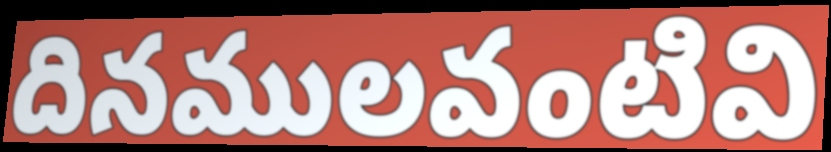
దినములవంటివి